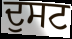
ਦੁਸਟ